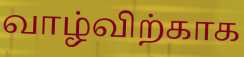
வாழ்விற்காக